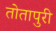
तोतापुरी